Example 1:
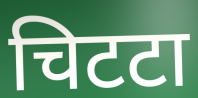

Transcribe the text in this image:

चिटटा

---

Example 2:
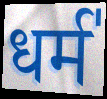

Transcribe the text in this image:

धर्म॑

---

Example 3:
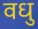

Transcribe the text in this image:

वधु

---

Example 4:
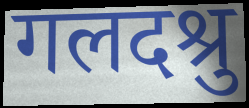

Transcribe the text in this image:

गलदश्रु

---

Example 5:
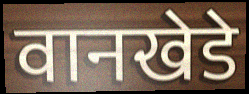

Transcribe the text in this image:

वानखेडे